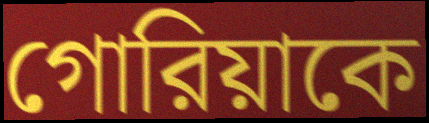
গোরিয়াকে